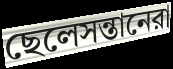
ছেলেসন্তানেরা